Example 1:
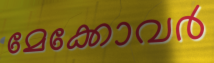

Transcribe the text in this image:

മേക്കോവർ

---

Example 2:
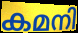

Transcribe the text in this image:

കമനി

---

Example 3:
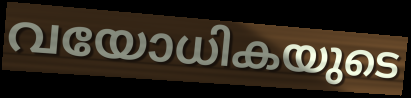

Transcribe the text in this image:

വയോധികയുടെ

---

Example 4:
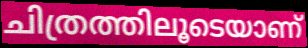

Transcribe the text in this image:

ചിത്രത്തിലൂടെയാണ്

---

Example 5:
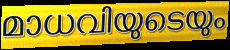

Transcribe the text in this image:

മാധവിയുടെയും